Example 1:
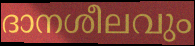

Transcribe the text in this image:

ദാനശീലവും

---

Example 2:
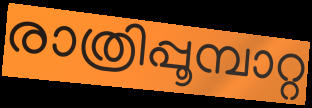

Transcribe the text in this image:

രാത്രിപ്പൂമ്പാറ്റ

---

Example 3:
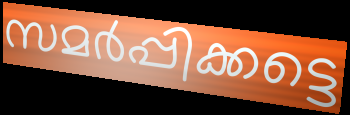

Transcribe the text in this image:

സമർപ്പിക്കട്ടെ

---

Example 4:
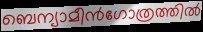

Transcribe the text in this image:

ബെന്യാമീൻഗോത്രത്തിൽ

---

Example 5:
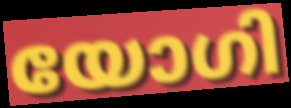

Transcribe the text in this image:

യോഗി